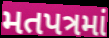
મતપત્રમાં